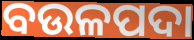
ବଉଳପଦା